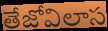
తేజోవిలాస